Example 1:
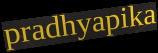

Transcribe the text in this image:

pradhyapika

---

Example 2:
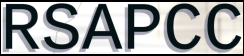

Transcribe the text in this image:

RSAPCC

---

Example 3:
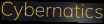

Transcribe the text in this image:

Cybernatics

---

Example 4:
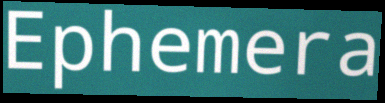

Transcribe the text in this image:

Ephemera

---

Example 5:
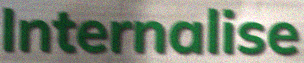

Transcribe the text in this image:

Internalise